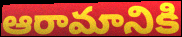
ఆరామానికి